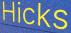
Hicks